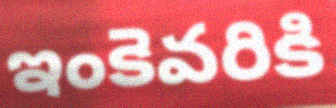
ఇంకెవరికి